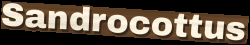
Sandrocottus